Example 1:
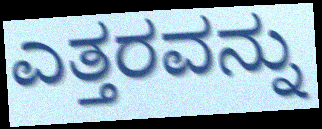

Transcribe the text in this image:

ಎತ್ತರವನ್ನು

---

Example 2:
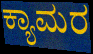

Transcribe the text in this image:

ಕ್ಯಾಮರ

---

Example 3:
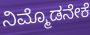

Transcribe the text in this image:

ನಿಮ್ಮೊಡನೇಕೆ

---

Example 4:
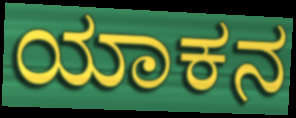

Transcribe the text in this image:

ಯಾಕನ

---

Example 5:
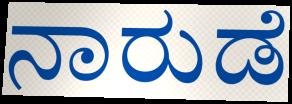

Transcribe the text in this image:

ನಾರುಡೆ